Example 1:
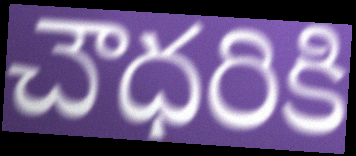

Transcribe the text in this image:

చౌధరికి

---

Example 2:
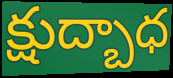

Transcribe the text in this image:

క్షుద్బాధ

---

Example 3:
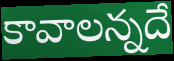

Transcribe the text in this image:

కావాలన్నదే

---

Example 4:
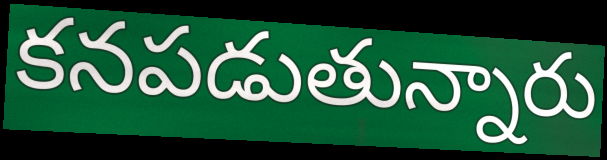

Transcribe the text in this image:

కనపడుతున్నారు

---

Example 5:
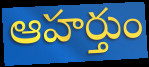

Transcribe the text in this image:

ఆహర్తుం